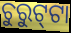
ଚୁରୁଟ୍‍ଟା